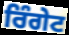
ਰਿੰਗੇਟ